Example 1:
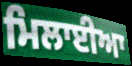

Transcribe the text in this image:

ਮਿਲਾਈਆ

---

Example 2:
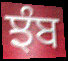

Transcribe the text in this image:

ਝੰਬ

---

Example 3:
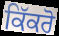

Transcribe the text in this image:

ਕਿੱਕਰੋ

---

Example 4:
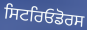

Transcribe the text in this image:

ਸਿਟਰਿਓਡੋਰਸ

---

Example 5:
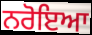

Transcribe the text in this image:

ਨਰੋਇਆ